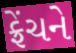
ફ્રેંચને